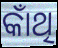
କାଁଥି